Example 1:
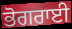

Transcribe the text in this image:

ਭੋਗਰਾਈ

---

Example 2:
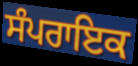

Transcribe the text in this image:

ਸੰਪਰਾਇਕ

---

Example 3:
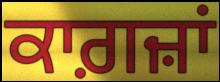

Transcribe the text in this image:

ਕਾਗ਼ਜ਼ਾਂ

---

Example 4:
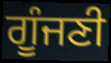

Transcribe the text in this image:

ਗੂੰਜਣੀ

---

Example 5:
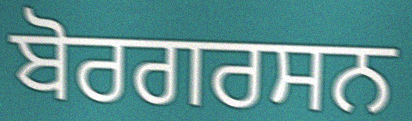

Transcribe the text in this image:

ਬੋਰਗਰਸਨ